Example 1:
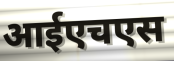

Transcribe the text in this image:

आईएचएस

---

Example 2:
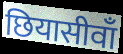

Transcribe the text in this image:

छियासीवाँ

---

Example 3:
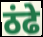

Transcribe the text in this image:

ठंढे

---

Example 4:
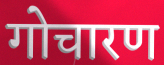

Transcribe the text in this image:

गोचारण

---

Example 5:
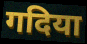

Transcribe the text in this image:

गदिया